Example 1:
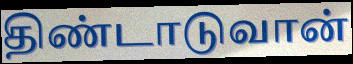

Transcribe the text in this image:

திண்டாடுவான்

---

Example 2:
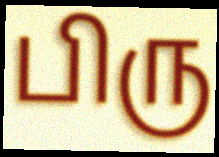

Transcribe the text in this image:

பிரு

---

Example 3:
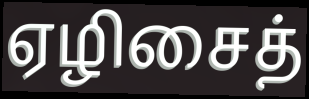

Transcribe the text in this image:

ஏழிசைத்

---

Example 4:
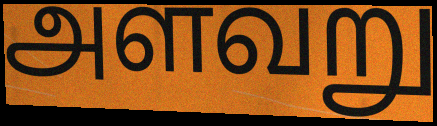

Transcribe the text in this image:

அளவறு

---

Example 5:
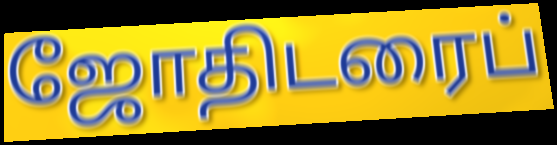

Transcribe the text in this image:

ஜோதிடரைப்